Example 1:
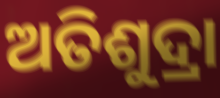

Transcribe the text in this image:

ଅତିଶୁଦ୍ରା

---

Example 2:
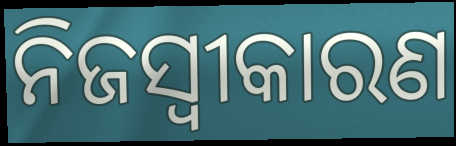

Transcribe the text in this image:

ନିଜସ୍ବୀକାରଣ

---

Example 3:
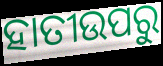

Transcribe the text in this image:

ହାତୀଉପରୁ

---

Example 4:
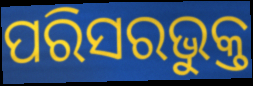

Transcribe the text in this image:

ପରିସରଭୁକ୍ତ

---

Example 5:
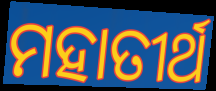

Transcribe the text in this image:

ମହାତୀର୍ଥ